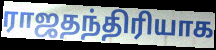
ராஜதந்திரியாக